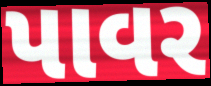
પાવર